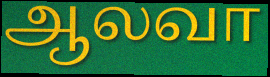
ஆலவா